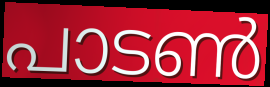
പാടൺ